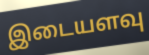
இடையளவு